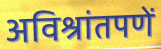
अविश्रांतपणें